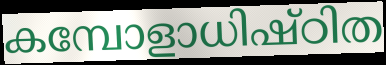
കമ്പോളാധിഷ്ഠിത